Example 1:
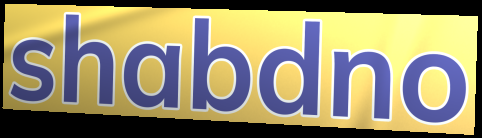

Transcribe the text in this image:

shabdno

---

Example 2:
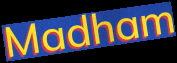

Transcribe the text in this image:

Madham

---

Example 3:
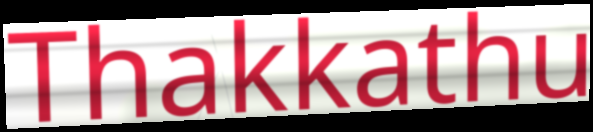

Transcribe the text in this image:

Thakkathu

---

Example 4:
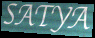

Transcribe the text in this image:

SATYA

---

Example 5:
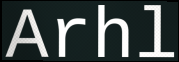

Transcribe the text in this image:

Arhl